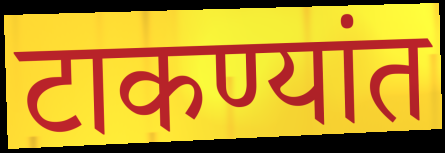
टाकण्यांत